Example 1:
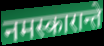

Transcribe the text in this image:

नमस्कारान्ते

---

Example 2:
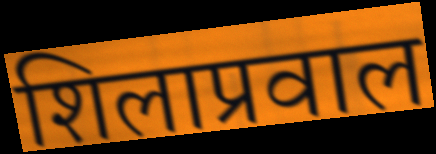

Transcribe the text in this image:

शिलाप्रवाल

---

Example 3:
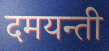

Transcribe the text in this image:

दमयन्ती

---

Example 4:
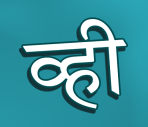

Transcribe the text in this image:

व्‍ही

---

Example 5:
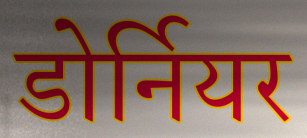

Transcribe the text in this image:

डोर्नियर